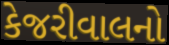
કેજરીવાલનો